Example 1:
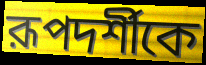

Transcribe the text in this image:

রূপদর্শীকে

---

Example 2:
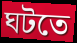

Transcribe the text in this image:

ঘটতে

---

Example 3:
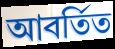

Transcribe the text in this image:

আবর্তিত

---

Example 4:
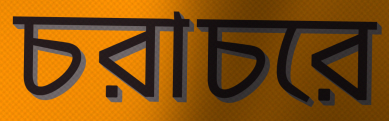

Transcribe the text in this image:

চরাচরে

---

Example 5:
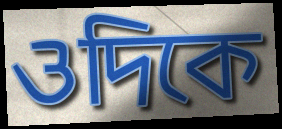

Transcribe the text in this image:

ওদিকে